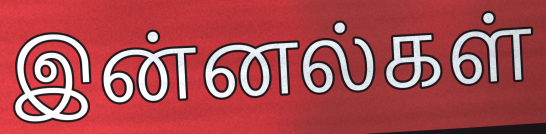
இன்னல்கள்